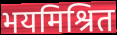
भयमिश्रित